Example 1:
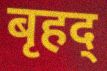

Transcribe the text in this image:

बृहद्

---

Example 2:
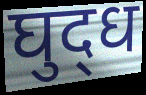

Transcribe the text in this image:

घुद्ध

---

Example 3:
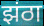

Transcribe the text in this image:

झंठा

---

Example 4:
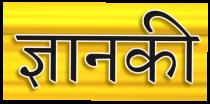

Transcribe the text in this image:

ज्ञानकी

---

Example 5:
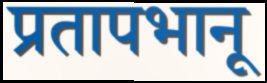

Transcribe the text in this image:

प्रतापभानू